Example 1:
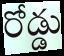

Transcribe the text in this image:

రోడ్డు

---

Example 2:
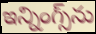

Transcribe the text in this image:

ఇన్నింగ్స్‌ను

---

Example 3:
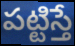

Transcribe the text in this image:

పట్టిస్తే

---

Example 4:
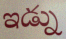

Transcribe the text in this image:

ఇడ్ను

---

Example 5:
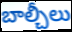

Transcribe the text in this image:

బాల్చీలు